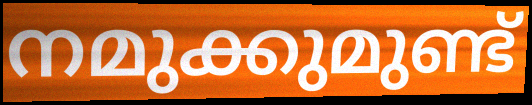
നമുക്കുമുണ്ട്